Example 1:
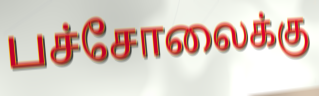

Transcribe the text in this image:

பச்சோலைக்கு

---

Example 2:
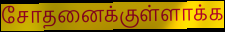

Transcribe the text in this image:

சோதனைக்குள்ளாக்க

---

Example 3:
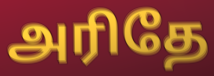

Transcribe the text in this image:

அரிதே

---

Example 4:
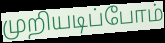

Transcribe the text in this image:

முறியடிப்போம்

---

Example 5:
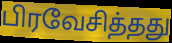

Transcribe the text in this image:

பிரவேசித்தது